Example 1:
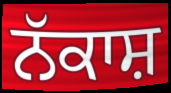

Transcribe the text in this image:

ਨੱਕਾਸ਼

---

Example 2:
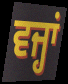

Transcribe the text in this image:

ਵਜ੍ਹਾਂ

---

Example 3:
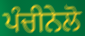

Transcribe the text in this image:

ਪੰਚੀਨੇਲੋ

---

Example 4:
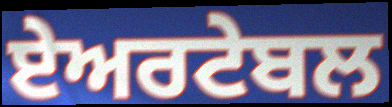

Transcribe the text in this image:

ਏਅਰਟੇਬਲ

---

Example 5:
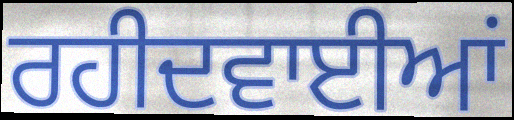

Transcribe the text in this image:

ਰਹੀਦਵਾਈਆਂ